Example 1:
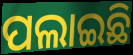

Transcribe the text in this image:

ପଲାଇଛି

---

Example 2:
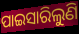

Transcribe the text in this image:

ପାଇସାରିଲୁଣି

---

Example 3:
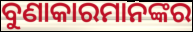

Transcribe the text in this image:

ବୁଣାକାରମାନଙ୍କର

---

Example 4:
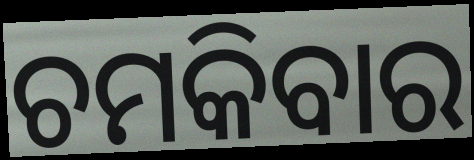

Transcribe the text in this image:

ଚମକିବାର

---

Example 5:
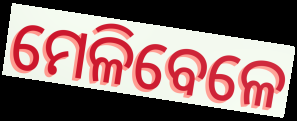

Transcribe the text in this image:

ମେଳିବେଳେ